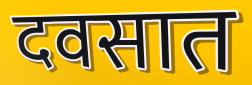
दवसात